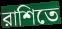
রাশিতে